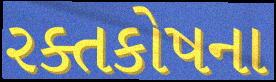
રક્તકોષના